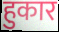
हुकार